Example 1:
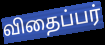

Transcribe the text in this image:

விதைப்பர்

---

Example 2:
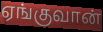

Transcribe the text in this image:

ஏங்குவான்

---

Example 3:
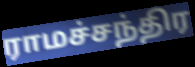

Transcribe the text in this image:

ராமச்சந்திர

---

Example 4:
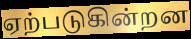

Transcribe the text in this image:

ஏற்படுகின்றன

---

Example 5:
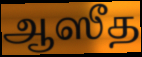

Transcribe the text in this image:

ஆஸீத